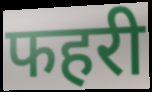
फहरी